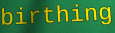
birthing